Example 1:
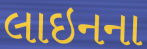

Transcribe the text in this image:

લાઇનના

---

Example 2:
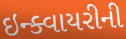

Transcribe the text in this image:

ઇન્ક્વાયરીની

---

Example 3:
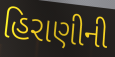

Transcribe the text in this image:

હિરાણીની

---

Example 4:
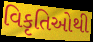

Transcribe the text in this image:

વિકૃતિઓથી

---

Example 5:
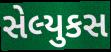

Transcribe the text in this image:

સેલ્યુકસ